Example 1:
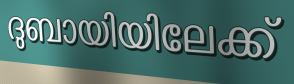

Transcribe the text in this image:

ദുബായിയിലേക്ക്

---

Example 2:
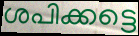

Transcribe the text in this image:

ശപിക്കട്ടെ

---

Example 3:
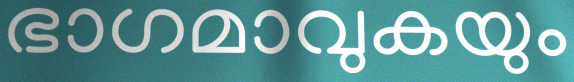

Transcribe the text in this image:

ഭാഗമാവുകയും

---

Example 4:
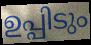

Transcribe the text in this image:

ഉപ്പിടും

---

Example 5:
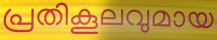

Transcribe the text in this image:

പ്രതികൂലവുമായ